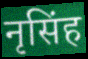
नृसिंह